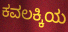
ಕವಲಕ್ಕಿಯ